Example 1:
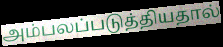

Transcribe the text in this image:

அம்பலப்படுத்தியதால்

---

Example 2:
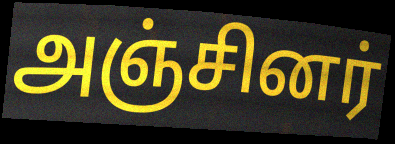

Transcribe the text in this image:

அஞ்சினர்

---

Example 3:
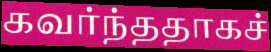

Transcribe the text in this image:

கவர்ந்ததாகச்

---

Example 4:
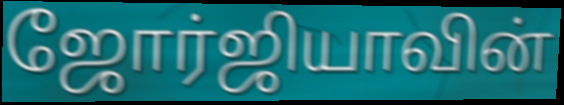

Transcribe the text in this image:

ஜோர்ஜியாவின்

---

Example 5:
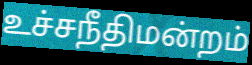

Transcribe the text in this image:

உச்சநீதிமன்றம்